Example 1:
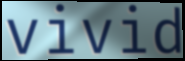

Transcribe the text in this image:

vivid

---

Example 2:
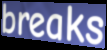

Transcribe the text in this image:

breaks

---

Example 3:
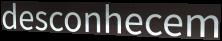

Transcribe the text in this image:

desconhecem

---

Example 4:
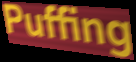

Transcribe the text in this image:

Puffing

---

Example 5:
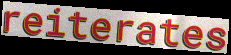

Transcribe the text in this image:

reiterates